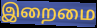
இறைமை